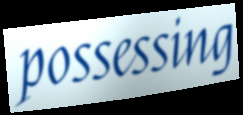
possessing